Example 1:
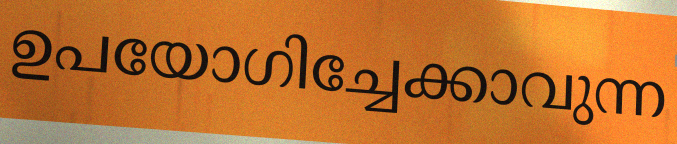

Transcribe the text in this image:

ഉപയോഗിച്ചേക്കാവുന്ന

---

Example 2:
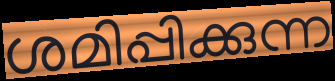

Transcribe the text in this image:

ശമിപ്പിക്കുന്ന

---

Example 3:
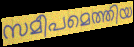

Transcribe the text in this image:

സമീപമെത്തിയ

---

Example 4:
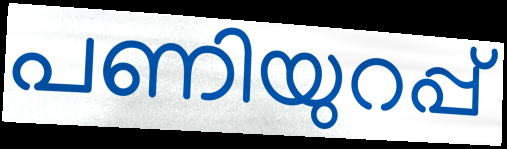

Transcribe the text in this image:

പണിയുറപ്പ്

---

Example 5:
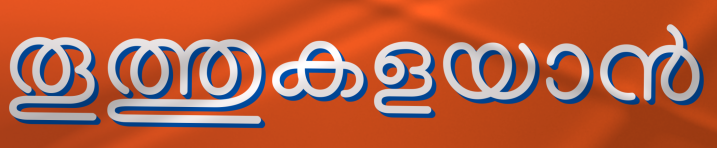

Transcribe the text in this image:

തൂത്തുകളയാൻ